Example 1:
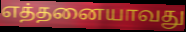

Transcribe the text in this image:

எத்தனையாவது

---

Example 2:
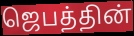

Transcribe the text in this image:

ஜெபத்தின்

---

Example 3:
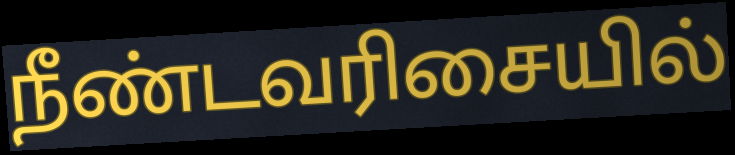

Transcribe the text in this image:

நீண்டவரிசையில்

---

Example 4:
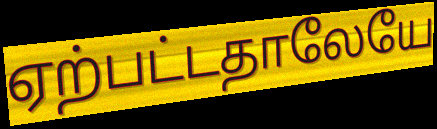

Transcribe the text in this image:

ஏற்பட்டதாலேயே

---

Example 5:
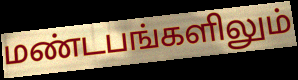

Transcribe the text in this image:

மண்டபங்களிலும்